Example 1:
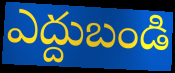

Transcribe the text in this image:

ఎద్దుబండి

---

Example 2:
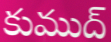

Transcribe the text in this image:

కుముద్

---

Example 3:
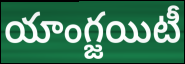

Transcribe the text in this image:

యాంగ్జయిటీ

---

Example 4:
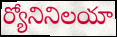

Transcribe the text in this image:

ర్యోనినిలయా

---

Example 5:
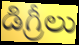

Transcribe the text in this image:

డిగ్రీలు